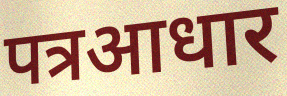
पत्रआधार